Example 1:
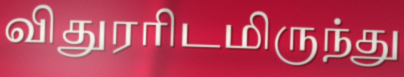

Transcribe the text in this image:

விதுரரிடமிருந்து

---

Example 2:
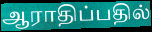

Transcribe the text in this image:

ஆராதிப்பதில்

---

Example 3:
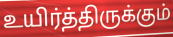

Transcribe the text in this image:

உயிர்த்திருக்கும்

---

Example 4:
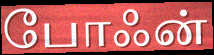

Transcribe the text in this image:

போஃன்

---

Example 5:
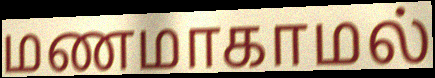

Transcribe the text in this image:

மணமாகாமல்